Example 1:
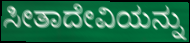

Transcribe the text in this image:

ಸೀತಾದೇವಿಯನ್ನು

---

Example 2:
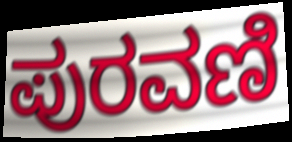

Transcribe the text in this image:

ಪುರವಣಿ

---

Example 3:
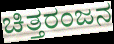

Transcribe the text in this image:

ಚಿತ್ತರಂಜನ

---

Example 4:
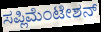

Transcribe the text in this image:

ಸಪ್ಲಿಮೆಂಟೇಶನ್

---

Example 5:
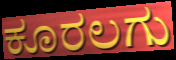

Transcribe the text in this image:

ಕೂರಲಗು